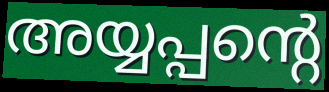
അയ്യപ്പന്റെ